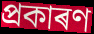
প্ৰকাৰণ